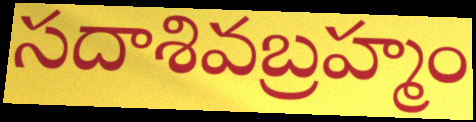
సదాశివబ్రహ్మం